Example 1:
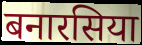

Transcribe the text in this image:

बनारसिया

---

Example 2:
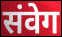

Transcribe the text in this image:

संवेग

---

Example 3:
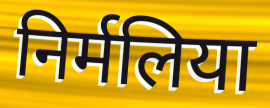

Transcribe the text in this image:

निर्मलिया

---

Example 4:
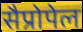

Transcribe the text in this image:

सैप्रोपेल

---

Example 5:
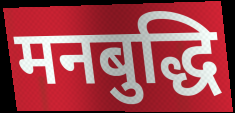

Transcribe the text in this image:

मनबुद्धि